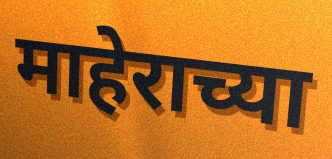
माहेराच्या